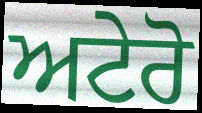
ਅਟੇਰੋ